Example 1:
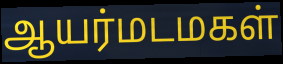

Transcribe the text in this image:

ஆயர்மடமகள்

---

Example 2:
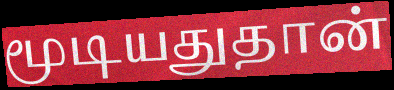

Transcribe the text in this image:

மூடியதுதான்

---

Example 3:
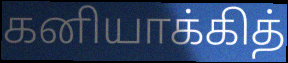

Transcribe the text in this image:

கனியாக்கித்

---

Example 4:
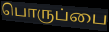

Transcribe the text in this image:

பொருப்பை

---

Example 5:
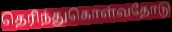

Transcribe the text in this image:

தெரிந்துகொள்வதோடு